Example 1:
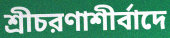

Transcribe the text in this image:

শ্রীচরণাশীর্বাদে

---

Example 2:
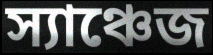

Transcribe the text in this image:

স্যাঞ্চেজ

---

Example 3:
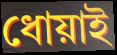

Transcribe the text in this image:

ধোয়াই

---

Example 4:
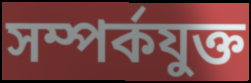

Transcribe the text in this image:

সম্পর্কযুক্ত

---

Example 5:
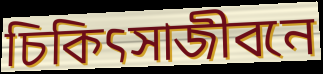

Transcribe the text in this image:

চিকিৎসাজীবনে